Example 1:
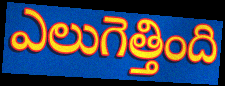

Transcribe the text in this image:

ఎలుగెత్తింది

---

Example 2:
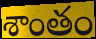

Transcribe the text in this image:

శాంతం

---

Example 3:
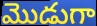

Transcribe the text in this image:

మొడుగా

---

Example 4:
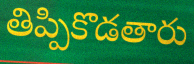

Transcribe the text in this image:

తిప్పికొడతారు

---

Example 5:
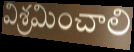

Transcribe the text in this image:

విశ్రమించాలి